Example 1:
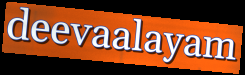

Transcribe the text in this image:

deevaalayam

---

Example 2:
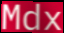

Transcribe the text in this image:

Mdx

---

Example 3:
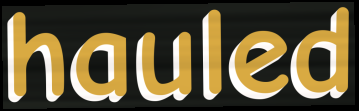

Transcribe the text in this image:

hauled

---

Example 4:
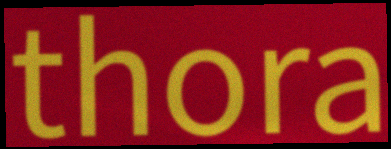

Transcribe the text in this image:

thora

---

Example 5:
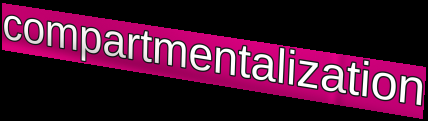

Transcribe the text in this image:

compartmentalization